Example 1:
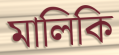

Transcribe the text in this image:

মালিকি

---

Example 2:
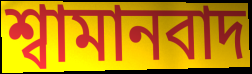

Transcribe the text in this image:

শ্বামানবাদ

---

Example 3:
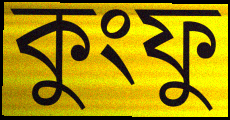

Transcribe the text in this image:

কুংফু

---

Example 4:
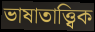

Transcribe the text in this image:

ভাষাতাত্ত্বিক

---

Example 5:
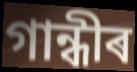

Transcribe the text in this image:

গান্ধীৰ